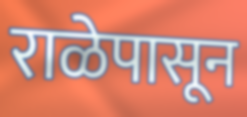
राळेपासून